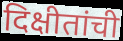
दिक्षीतांची